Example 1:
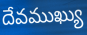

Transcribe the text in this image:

దేవముఖ్యు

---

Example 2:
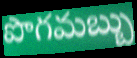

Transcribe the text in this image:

పొగమబ్బు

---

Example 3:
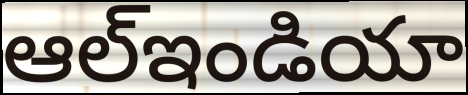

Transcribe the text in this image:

ఆల్ఇండియా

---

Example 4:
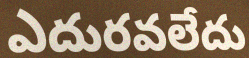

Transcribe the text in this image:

ఎదురవలేదు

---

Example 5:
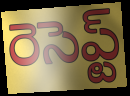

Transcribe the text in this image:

రెసెప్ట్